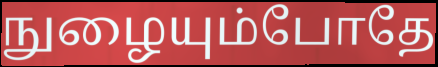
நுழையும்போதே